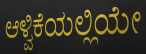
ಆಳ್ವಿಕೆಯಲ್ಲಿಯೇ